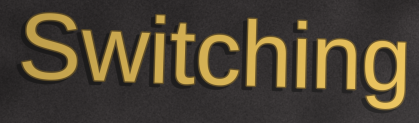
Switching